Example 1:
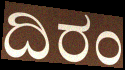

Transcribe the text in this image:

ದಿರಂ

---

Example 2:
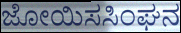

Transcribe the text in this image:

ಜೋಯಿಸಸಿಂಘನ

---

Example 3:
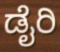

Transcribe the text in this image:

ಡೈರಿ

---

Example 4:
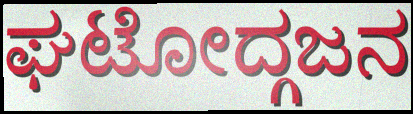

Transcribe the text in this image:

ಘಟೋದ್ಗಜನ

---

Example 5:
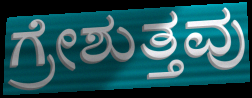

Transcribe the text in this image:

ಗ್ರೇಶುತ್ತವು